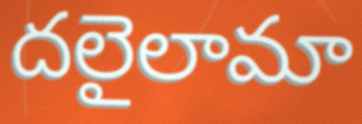
దలైలామా